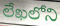
లేఖలోని